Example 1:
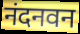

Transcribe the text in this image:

नंदनवन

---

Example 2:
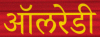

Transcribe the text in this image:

ऑलरेडी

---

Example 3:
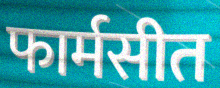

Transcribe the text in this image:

फार्मसीत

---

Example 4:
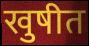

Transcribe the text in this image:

खुषीत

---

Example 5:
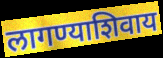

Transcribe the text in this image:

लागण्याशिवाय